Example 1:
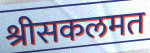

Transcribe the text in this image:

श्रीसकलमत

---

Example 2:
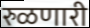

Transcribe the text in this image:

रुळणारी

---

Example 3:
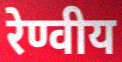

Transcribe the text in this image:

रेण्वीय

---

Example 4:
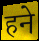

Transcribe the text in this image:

हने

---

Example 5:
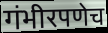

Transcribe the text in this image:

गंभीरपणेच